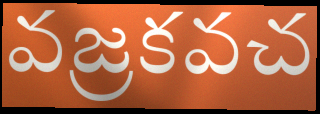
వజ్రకవచ